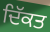
ਦਿੱਕਤ